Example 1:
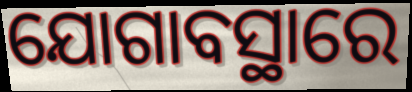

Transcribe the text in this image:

ଯୋଗାବସ୍ଥାରେ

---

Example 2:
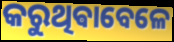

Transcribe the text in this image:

କରୁଥିଵାବେଳେ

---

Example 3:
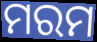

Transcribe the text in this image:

ମରମ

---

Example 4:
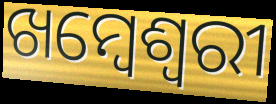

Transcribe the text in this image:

ଖମ୍ବେଶ୍ଵରୀ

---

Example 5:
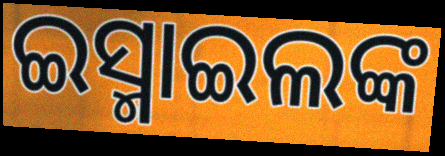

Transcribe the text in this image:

ଇସ୍ମାଇଲଙ୍କ